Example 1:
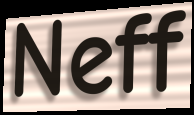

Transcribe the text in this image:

Neff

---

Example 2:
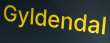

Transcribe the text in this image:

Gyldendal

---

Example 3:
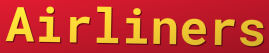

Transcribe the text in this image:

Airliners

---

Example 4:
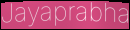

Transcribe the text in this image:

Jayaprabha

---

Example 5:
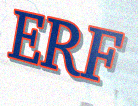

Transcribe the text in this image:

ERF